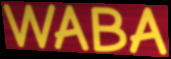
WABA